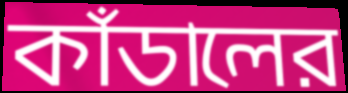
কাঁডালের